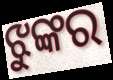
ଝୁଙ୍କର